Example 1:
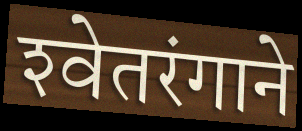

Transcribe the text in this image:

श्वेतरंगाने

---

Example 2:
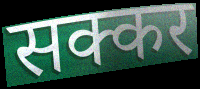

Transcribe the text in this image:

सक्कर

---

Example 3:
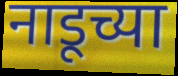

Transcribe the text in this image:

नाडूच्या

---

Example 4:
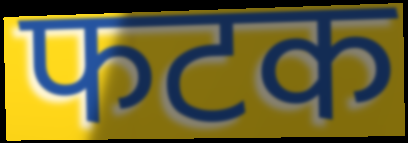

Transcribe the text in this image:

फटक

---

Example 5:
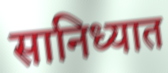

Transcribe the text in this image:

सानिध्यात